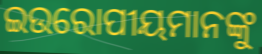
ଇଉରୋପୀୟମାନଙ୍କୁ